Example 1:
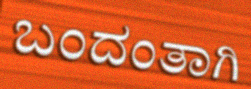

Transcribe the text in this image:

ಬಂದಂತಾಗಿ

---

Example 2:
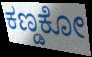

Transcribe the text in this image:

ಕಣ್ಡಕೋ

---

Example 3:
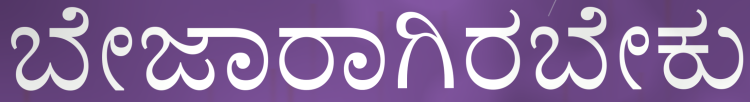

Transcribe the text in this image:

ಬೇಜಾರಾಗಿರಬೇಕು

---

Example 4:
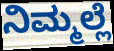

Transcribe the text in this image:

ನಿಮ್ಮಲ್ಲೆ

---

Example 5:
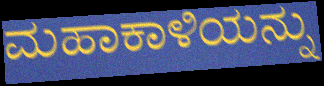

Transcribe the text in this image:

ಮಹಾಕಾಳಿಯನ್ನು